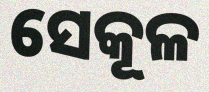
ସେକୂଳ